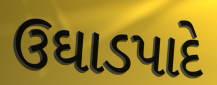
ઉઘાડપાદે